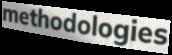
methodologies